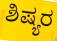
ಶಿಷ್ಯರ